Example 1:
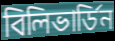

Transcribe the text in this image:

বিলিভার্ডিন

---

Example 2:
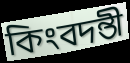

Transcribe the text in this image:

কিংবদন্তী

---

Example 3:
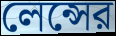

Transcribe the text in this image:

লেন্সের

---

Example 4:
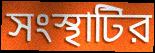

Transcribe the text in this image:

সংস্থাটির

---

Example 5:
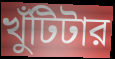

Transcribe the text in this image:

খুঁটিটার